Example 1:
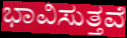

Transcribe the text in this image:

ಭಾವಿಸುತ್ತವೆ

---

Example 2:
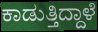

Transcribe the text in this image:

ಕಾಡುತ್ತಿದ್ದಾಳೆ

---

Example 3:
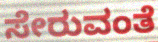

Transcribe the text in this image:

ಸೇರುವಂತೆ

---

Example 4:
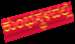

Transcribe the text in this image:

ಕುಂಭಸ್ಥಳದಲ್ಲಿ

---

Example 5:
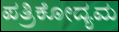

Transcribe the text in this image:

ಪತ್ರಿಕೋದ್ಯಮ